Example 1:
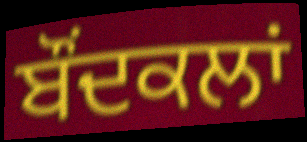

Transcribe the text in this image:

ਬੌਂਦਕਲਾਂ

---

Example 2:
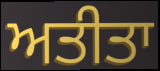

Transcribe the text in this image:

ਅਤੀਤਾ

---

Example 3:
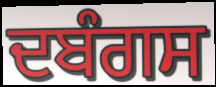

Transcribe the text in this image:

ਦਬੰਗਸ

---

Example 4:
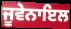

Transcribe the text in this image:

ਜੂਵੇਨਾਇਲ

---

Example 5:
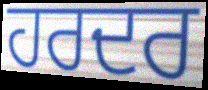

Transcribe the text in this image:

ਹਰਦਰ